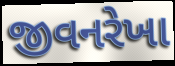
જીવનરેખા